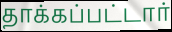
தாக்கப்பட்டார்